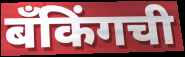
बँकिंगची